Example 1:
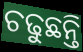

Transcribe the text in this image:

ଚଢୁଛନ୍ତି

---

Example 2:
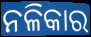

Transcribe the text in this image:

ନଳିକାର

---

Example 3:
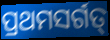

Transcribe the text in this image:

ପ୍ରଥମସର୍ଗତ୍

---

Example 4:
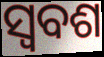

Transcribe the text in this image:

ସ୍ଵବଶ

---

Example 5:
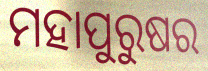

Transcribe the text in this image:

ମହାପୁରୁଷର